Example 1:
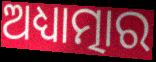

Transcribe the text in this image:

ଅଧ୍ୟାତ୍ମାର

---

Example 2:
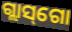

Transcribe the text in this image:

ଗ୍ଲାସ୍‌ଗୋ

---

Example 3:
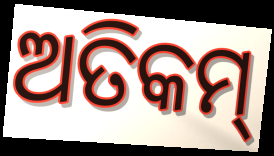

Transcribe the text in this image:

ଅତିକମ୍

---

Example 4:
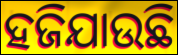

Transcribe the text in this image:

ହଜିଯାଉଛି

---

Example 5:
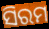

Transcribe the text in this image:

ସିରମ